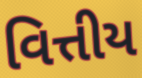
વિત્તીય